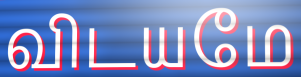
விடயமே